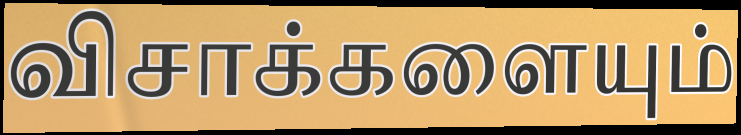
விசாக்களையும்